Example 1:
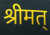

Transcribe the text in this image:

श्रीमत्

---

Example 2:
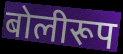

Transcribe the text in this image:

बोलीरूप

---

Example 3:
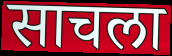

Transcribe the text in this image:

साचला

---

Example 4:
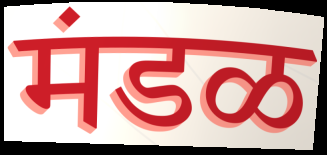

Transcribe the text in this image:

मंडळ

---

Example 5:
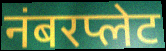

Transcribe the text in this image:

नंबरप्लेट